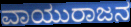
ವಾಯುರಾಜನ